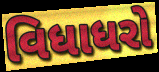
વિધાધરો